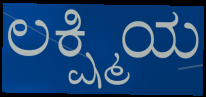
ಲಕ್ಷ್ಮಿಯ